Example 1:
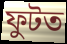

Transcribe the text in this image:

ফুটত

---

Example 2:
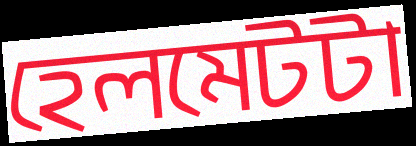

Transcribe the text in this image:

হেলমেটটা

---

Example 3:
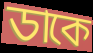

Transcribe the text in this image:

ডাকে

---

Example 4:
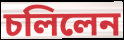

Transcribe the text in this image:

চলিলেন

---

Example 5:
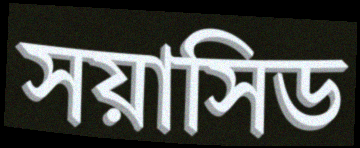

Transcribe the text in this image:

সয়াসিড